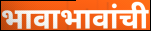
भावाभावांची